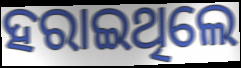
ହରାଇଥିଲେ